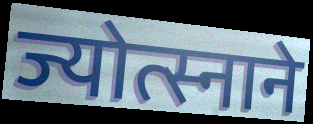
ज्योत्स्नाने